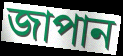
জাপান